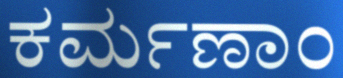
ಕರ್ಮಣಾಂ